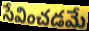
సేవించడమే